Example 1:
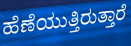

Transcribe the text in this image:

ಹೆಣೆಯುತ್ತಿರುತ್ತಾರೆ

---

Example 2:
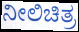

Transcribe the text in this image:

ನೀಲಿಚಿತ್ರ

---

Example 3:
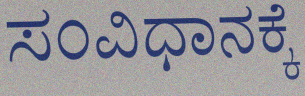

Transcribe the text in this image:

ಸಂವಿಧಾನಕ್ಕೆ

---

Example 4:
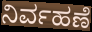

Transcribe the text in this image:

ನಿರ್ವಹಣೆ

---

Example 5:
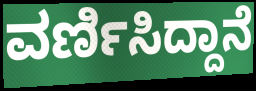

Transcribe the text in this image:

ವರ್ಣಿಸಿದ್ದಾನೆ